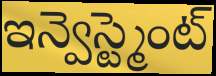
ఇన్వెస్ట్మెంట్